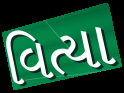
વિત્યા